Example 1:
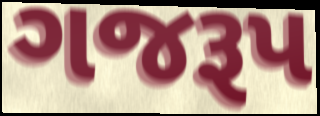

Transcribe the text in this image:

ગજરૂપ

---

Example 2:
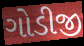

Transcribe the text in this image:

ગોડીજી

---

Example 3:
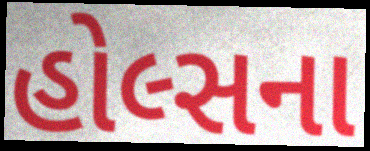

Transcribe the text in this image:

હોલ્સના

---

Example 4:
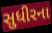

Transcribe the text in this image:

સુધીરના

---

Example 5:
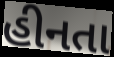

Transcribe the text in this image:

હીનતા